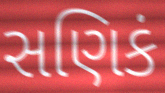
સણિકં